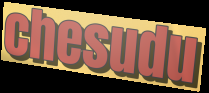
chesudu